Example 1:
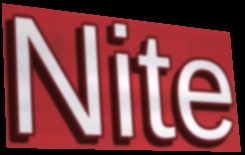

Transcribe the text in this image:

Nite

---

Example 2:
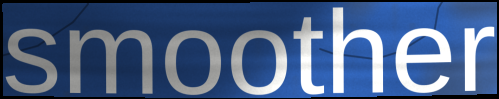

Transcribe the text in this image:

smoother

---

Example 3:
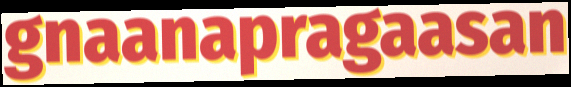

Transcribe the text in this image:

gnaanapragaasan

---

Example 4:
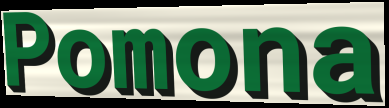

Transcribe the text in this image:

Pomona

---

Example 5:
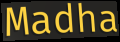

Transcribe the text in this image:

Madha